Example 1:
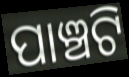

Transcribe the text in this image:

ପାଞ୍ଚଟି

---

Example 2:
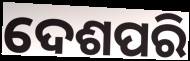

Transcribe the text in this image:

ଦେଶପରି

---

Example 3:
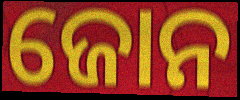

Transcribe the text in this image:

ଜୋନ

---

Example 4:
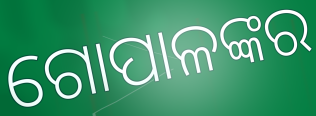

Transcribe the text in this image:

ଗୋପାଳଙ୍କର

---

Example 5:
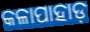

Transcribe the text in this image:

କଳାପାହାଡ଼